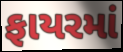
ફાયરમાં